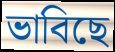
ভাবিছে